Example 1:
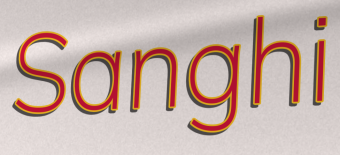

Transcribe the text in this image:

Sanghi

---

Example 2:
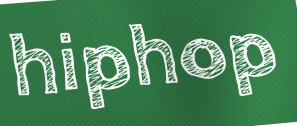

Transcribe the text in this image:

hiphop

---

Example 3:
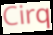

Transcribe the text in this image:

Cirq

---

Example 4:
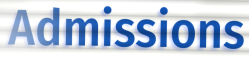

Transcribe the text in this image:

Admissions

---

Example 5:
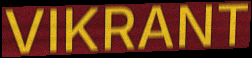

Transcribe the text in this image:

VIKRANT